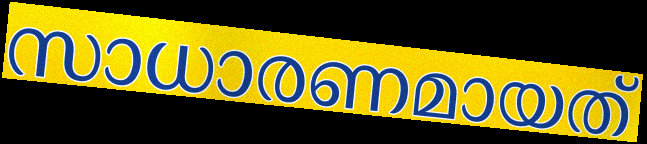
സാധാരണമായത്